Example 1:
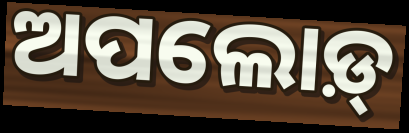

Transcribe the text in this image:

ଅପଲୋଡ଼୍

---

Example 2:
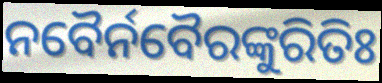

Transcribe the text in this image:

ନବୈର୍ନବୈରଙ୍କୁରିତିଃ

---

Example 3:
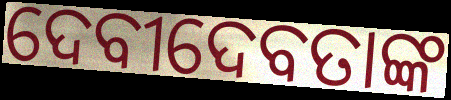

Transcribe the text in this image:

ଦେବୀଦେବତାଙ୍କ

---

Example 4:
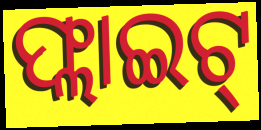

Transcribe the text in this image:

ଫ୍ଲାଇଟ୍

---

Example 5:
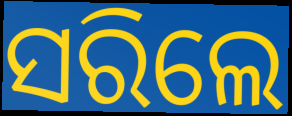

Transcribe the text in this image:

ସରିଲେ